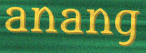
anang